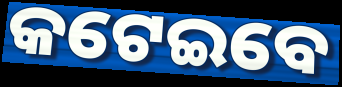
କଟେଇବେ